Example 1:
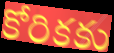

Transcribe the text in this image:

కోరికకు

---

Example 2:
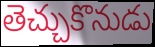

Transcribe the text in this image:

తెచ్చుకొనుడు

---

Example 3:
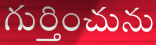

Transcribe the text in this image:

గుర్తించును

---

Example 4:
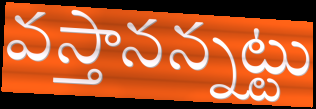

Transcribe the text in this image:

వస్తానన్నట్టు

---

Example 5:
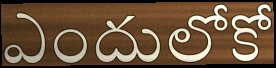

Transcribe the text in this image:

ఎందులోకో